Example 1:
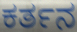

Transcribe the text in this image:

ಕರ್ತನ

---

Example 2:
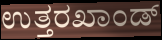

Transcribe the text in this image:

ಉತ್ತರಖಾಂಡ್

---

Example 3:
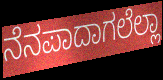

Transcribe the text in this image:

ನೆನಪಾದಾಗಲೆಲ್ಲಾ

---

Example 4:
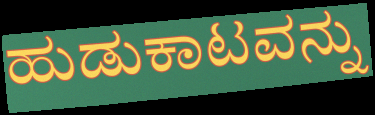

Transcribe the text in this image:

ಹುಡುಕಾಟವನ್ನು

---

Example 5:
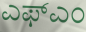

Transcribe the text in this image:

ಎಫ್ಎಂ